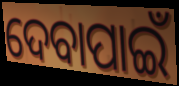
ଦେବାପାଇଁ